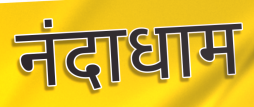
नंदाधाम